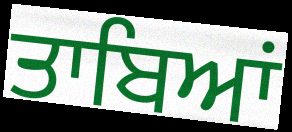
ਤਾਬਿਆਂ